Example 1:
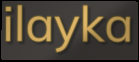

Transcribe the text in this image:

ilayka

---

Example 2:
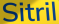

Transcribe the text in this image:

Sitril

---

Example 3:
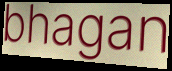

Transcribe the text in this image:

bhagan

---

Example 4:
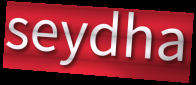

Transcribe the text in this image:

seydha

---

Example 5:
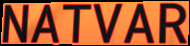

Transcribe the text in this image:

NATVAR